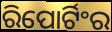
ରିପୋର୍ଟିଂର